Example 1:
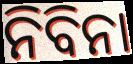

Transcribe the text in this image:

ନିବିନା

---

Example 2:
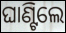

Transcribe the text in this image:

ଘାଣ୍ଟିଲେ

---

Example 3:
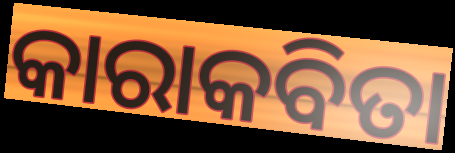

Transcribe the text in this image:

କାରାକବିତା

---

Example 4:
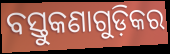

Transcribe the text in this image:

ବସ୍ତୁକଣାଗୁଡ଼ିକର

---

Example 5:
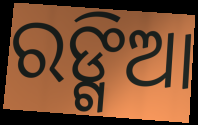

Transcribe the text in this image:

ରଙ୍ଗିଆ